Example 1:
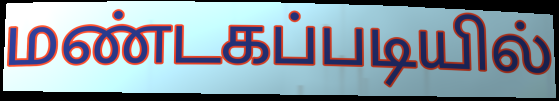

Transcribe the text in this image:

மண்டகப்படியில்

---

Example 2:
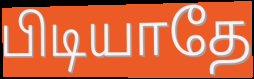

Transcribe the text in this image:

பிடியாதே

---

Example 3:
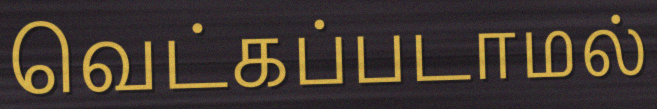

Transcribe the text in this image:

வெட்கப்படாமல்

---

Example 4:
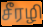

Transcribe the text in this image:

சீரழி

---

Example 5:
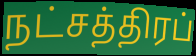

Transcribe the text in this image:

நட்சத்திரப்